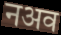
नअव